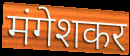
मंगेशकर